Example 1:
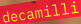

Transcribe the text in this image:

decamilli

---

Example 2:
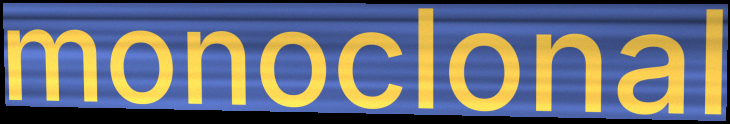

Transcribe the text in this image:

monoclonal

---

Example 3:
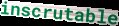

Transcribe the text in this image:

inscrutable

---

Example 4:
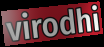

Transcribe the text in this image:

virodhi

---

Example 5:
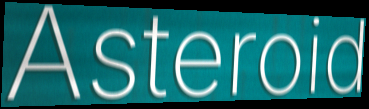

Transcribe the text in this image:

Asteroid